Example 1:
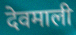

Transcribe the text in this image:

देवमाली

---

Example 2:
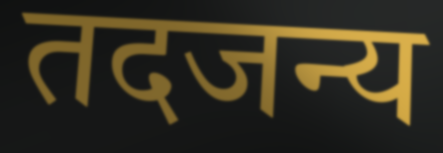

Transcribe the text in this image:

तदजन्य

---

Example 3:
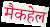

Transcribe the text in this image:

मैकहेल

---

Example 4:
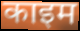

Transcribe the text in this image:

काइम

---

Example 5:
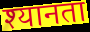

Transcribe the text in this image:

श्यानता